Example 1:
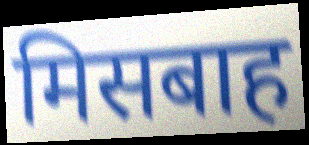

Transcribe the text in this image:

मिसबाह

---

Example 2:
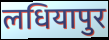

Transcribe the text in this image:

लधियापुर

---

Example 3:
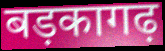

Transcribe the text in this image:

बड़कागढ़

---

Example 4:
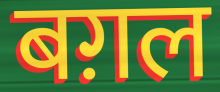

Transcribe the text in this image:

बग़ल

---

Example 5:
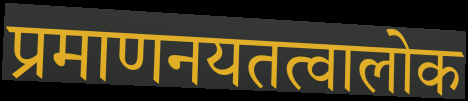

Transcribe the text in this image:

प्रमाणनयतत्वालोक